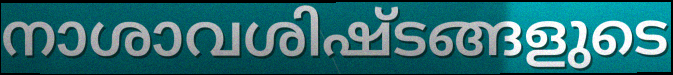
നാശാവശിഷ്ടങ്ങളുടെ